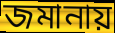
জমানায়